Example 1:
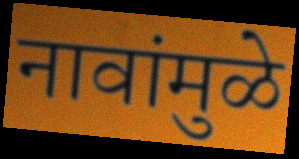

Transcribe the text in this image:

नावांमुळे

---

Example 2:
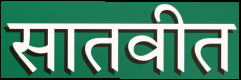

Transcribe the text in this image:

सातवीत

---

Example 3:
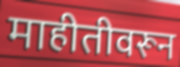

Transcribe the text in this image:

माहीतीवरून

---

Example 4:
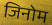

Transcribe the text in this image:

जिनोम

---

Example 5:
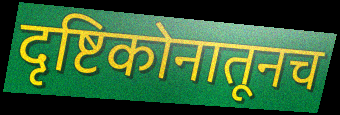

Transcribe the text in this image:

दृष्टिकोनातूनच